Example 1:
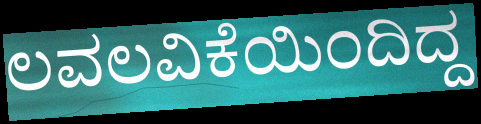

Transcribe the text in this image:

ಲವಲವಿಕೆಯಿಂದಿದ್ದ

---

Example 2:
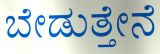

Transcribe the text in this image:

ಬೇಡುತ್ತೇನೆ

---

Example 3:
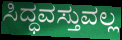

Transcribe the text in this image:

ಸಿದ್ಧವಸ್ತುವಲ್ಲ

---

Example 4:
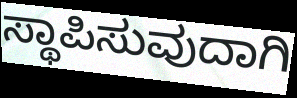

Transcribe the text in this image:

ಸ್ಥಾಪಿಸುವುದಾಗಿ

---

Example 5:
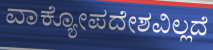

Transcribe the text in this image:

ವಾಕ್ಯೋಪದೇಶವಿಲ್ಲದೆ